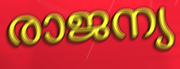
രാജന്യ